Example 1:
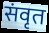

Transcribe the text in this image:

संवृत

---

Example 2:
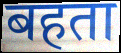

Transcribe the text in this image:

बहता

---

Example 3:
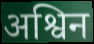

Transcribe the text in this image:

अश्विन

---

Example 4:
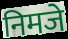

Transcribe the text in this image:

निमजे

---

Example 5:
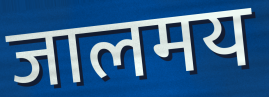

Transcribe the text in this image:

जालमय